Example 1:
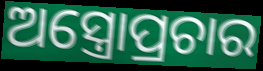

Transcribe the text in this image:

ଅସ୍ତ୍ରୋପ୍ରଚାର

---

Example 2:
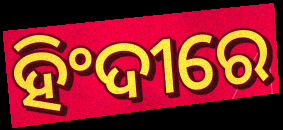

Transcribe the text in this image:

ହିଂଦୀରେ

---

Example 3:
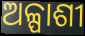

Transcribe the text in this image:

ଅଳ୍ପାଶୀ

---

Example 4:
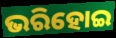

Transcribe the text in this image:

ଭରିହୋଇ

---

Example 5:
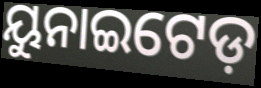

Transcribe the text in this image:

ୟୁନାଇଟେଡ଼